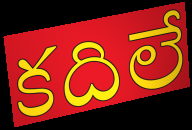
కదిలే